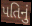
પતિનું